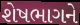
શેષભાગને